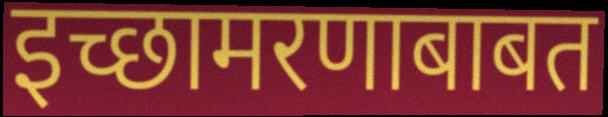
इच्छामरणाबाबत